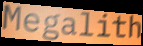
Megalith